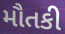
મૌતકી